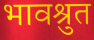
भावश्रुत